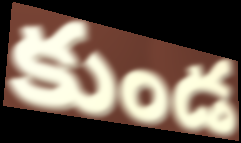
కుండ